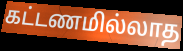
கட்டணமில்லாத